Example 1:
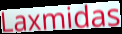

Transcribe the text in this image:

Laxmidas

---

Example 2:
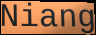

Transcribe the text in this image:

Niang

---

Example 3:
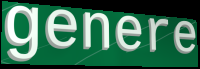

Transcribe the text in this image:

genere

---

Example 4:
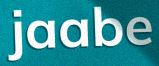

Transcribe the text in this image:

jaabe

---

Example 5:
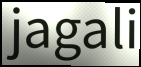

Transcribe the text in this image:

jagali